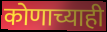
कोणाच्याही